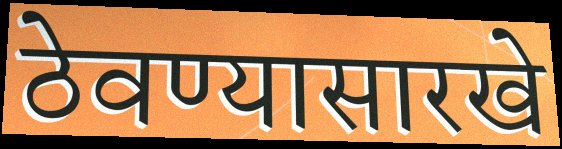
ठेवण्यासारखे